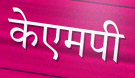
केएमपी